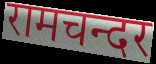
रामचन्दर